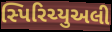
સ્પિરિચ્યુઅલી